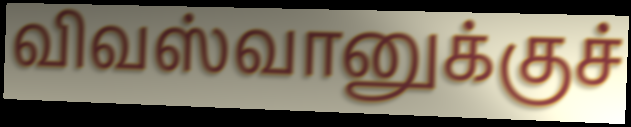
விவஸ்வானுக்குச்